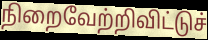
நிறைவேற்றிவிட்டுச்